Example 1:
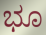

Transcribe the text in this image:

ಭೂ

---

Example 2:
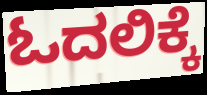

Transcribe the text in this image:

ಓದಲಿಕ್ಕೆ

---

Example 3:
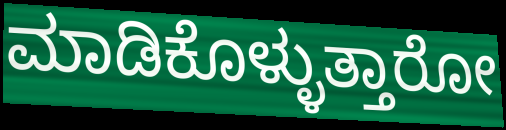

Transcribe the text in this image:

ಮಾಡಿಕೊಳ್ಳುತ್ತಾರೋ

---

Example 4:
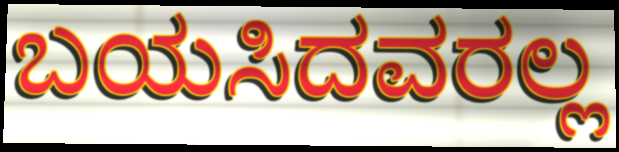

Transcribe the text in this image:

ಬಯಸಿದವರಲ್ಲ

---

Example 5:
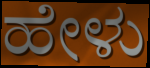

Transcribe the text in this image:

ಹೇಳು